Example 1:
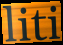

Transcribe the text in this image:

liti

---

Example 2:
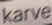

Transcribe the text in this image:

karve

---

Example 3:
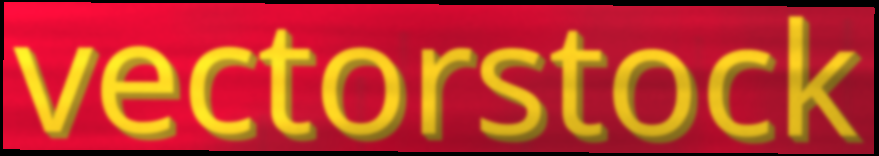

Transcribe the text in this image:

vectorstock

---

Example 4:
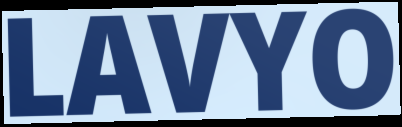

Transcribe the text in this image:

LAVYO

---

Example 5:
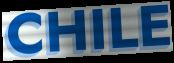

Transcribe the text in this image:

CHILE